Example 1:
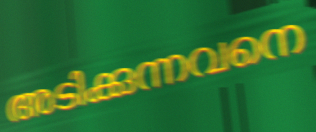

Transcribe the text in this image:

അടിക്കുന്നവനെ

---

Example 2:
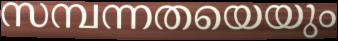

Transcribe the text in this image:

സമ്പന്നതയെയും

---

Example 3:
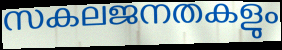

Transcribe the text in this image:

സകലജനതകളും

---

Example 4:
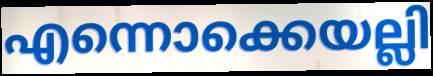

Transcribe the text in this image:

എന്നൊക്കെയല്ലി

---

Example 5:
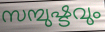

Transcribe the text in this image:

സമ്പുഷ്ടവും